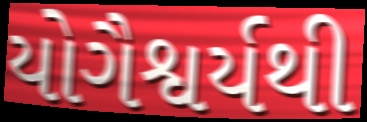
યોગૈશ્વર્યથી